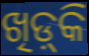
ଖିଡ଼୍‌କି